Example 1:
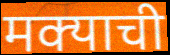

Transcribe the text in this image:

मक्याची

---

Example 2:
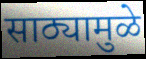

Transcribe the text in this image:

साठ्यामुळे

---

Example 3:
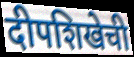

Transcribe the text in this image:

दीपशिखेची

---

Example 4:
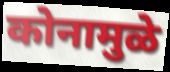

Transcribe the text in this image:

कोनामुळे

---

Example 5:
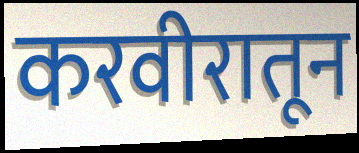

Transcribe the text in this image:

करवीरातून